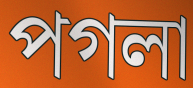
পগলা